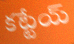
కట్టేయ్